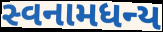
સ્વનામધન્ય